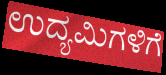
ಉದ್ಯಮಿಗಳಿಗೆ